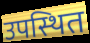
उपस्थित